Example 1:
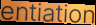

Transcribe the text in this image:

entiation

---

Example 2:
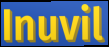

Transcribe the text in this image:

Inuvil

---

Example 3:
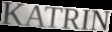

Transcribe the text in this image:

KATRIN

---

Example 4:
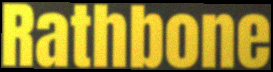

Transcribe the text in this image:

Rathbone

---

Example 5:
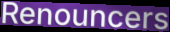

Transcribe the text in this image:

Renouncers